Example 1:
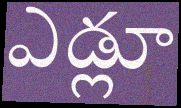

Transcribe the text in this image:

ఎడ్లూ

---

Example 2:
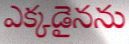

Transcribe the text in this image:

ఎక్కడైనను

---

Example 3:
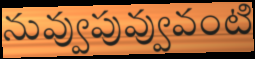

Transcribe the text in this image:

నువ్వుపువ్వువంటి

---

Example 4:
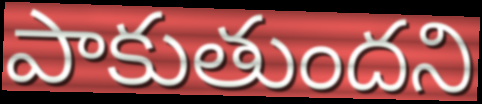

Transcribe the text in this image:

పాకుతుందని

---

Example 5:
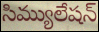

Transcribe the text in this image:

సిమ్యులేషన్